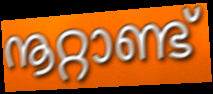
നൂറ്റാണ്ട്